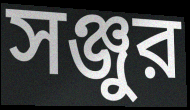
সঞ্জুর